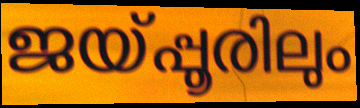
ജയ്പ്പൂരിലും